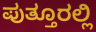
ಪುತ್ತೂರಲ್ಲಿ